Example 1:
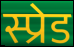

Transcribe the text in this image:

स्प्रेड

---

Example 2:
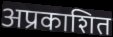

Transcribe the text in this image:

अप्रकाशित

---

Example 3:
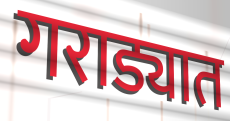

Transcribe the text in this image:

गराड्यात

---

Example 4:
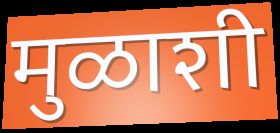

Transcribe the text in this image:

मुळाशी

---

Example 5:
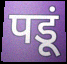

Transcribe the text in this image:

पडूं